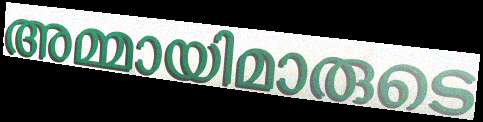
അമ്മായിമാരുടെ